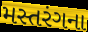
મસ્તરંગના